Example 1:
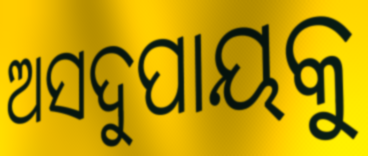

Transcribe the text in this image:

ଅସଦୁପାୟକୁ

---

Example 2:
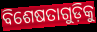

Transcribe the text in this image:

ବିଶେଷତାଗୁଡ଼ିକୁ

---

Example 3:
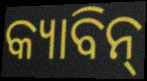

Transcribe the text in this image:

କ୍ୟାବିନ୍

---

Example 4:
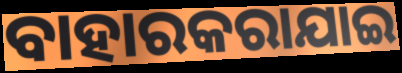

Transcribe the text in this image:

ବାହାରକରାଯାଇ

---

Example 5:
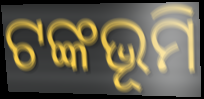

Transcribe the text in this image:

ଟଙ୍କଭୂମି